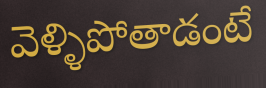
వెళ్ళిపోతాడంటే